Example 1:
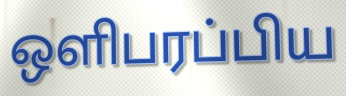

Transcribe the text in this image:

ஒளிபரப்பிய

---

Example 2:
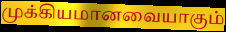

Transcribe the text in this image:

முக்கியமானவையாகும்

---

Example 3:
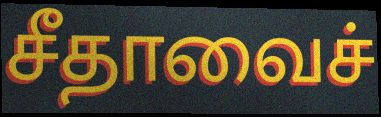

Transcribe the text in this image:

சீதாவைச்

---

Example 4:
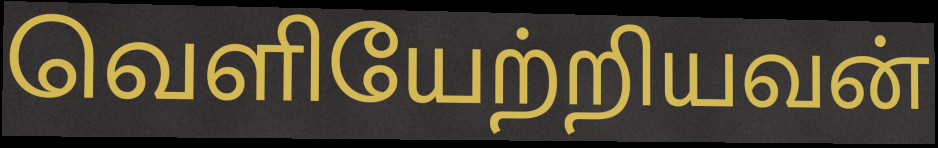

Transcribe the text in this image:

வெளியேற்றியவன்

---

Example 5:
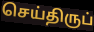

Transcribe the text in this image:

செய்திருப்